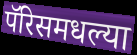
पॅरिसमधल्या